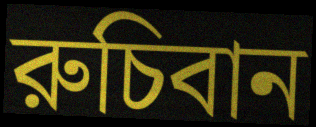
রুচিবান